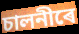
চালনীৰে